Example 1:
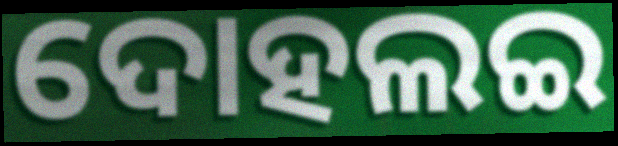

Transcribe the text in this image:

ଦୋହଲଇ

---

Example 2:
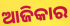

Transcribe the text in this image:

ଆଜିକାର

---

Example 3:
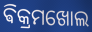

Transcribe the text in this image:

ଵିକ୍ରମଖୋଲ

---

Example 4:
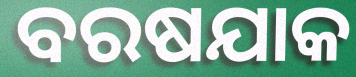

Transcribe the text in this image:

ବରଷଯାକ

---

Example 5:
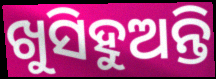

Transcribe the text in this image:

ଖୁସିହୁଅନ୍ତି